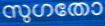
സുഗതോ